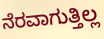
ನೆರವಾಗುತ್ತಿಲ್ಲ